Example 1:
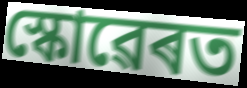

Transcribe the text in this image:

স্কোৱেৰত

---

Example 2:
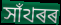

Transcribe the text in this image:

সাঁথৰৰ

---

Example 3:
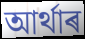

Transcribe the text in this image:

আৰ্থাৰ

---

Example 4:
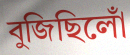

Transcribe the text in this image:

বুজিছিলোঁ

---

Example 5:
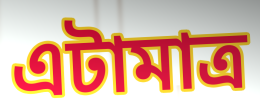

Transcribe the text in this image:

এটামাত্ৰ